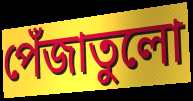
পেঁজাতুলো